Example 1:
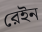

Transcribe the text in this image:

রেইন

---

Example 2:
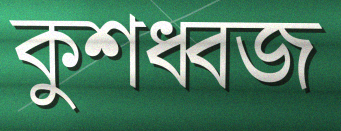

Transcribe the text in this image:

কুশধ্বজ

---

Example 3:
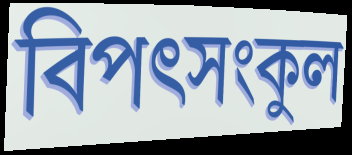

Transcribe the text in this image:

বিপৎসংকুল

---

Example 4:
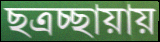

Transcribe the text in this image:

ছত্রচ্ছায়ায়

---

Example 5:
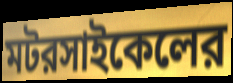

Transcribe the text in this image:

মটরসাইকেলের